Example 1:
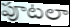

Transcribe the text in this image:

పూటలా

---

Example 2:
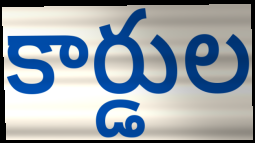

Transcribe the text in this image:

కార్డుల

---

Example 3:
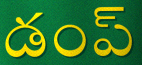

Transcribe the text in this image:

డంప్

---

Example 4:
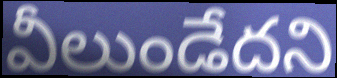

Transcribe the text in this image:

వీలుండేదని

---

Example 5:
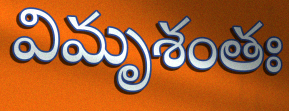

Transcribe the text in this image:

విమృశంతః